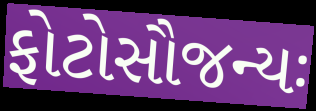
ફોટોસૌજન્યઃ